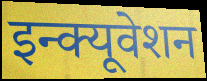
इन्क्यूवेशन